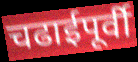
चढाईपूर्वी